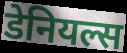
डेनियल्स